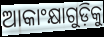
ଆକାଂକ୍ଷାଗୁଡ଼ିକୁ